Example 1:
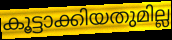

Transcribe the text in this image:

കൂട്ടാക്കിയതുമില്ല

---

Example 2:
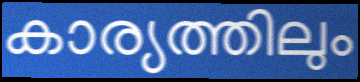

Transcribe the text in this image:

കാര്യത്തിലും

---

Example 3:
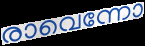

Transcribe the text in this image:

രാവെന്നോ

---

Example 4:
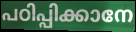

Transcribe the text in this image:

പഠിപ്പിക്കാനേ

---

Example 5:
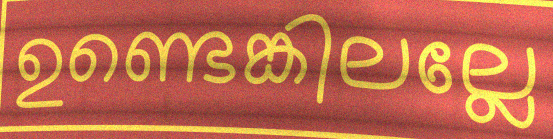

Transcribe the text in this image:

ഉണ്ടെങ്കിലല്ലേ